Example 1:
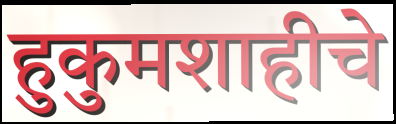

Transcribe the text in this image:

हुकुमशाहीचे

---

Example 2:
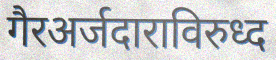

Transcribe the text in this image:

गैरअर्जदाराविरुध्द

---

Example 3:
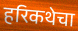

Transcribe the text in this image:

हरिकथेचा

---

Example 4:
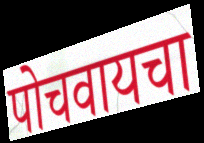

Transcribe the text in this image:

पोचवायचा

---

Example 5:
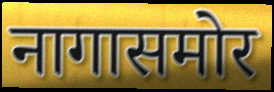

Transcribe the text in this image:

नागासमोर